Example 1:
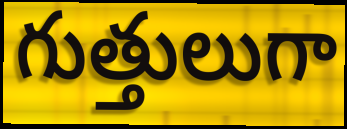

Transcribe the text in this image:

గుత్తులుగా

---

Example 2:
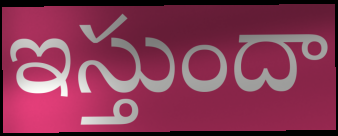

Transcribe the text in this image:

ఇస్తుందా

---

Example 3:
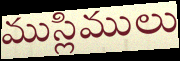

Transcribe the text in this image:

ముస్లిములు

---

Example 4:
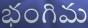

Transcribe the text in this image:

భంగిమ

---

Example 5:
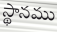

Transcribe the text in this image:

స్థానము